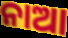
ନାଆ